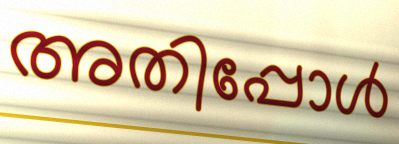
അതിപ്പോൾ